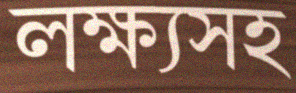
লক্ষ্যসহ